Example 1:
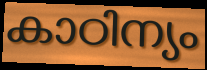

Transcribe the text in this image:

കാഠിന്യം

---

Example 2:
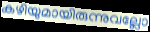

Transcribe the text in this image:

കഴിയുമായിരുന്നുവല്ലോ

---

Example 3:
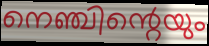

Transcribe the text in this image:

നെഞ്ചിന്റെയും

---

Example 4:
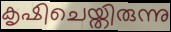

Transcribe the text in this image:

കൃഷിചെയ്തിരുന്നു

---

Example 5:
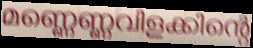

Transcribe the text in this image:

മണ്ണെണ്ണവിളക്കിന്റെ